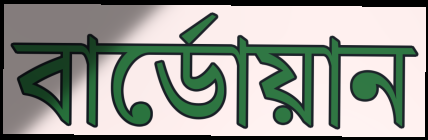
বার্ডোয়ান